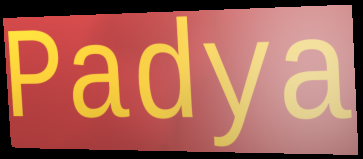
Padya